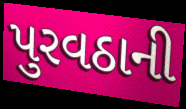
પુરવઠાની